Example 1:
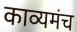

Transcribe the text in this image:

काव्यमंच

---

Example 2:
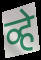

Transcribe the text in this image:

व्हे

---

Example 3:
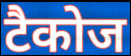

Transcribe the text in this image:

टैकोज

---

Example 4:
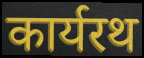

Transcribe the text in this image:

कार्यरथ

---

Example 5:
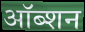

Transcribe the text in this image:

ऑब्शन